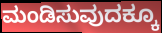
ಮಂಡಿಸುವುದಕ್ಕೂ